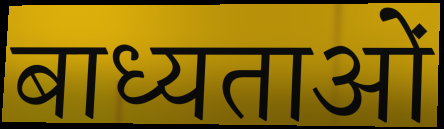
बाध्यताओं